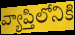
వ్యాప్తిలోనికి